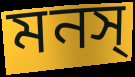
মনস্